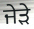
ਜੇੜੇ